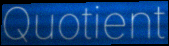
Quotient